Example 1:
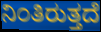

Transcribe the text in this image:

ನಿಂತಿರುತ್ತದೆ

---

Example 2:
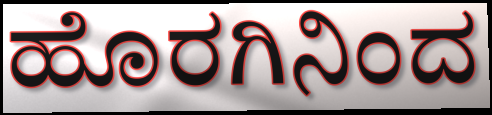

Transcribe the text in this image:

ಹೊರಗಿನಿಂದ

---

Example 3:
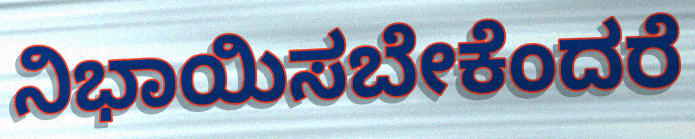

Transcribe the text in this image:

ನಿಭಾಯಿಸಬೇಕೆಂದರೆ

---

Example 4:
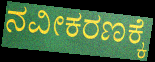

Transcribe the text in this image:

ನವೀಕರಣಕ್ಕೆ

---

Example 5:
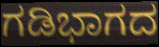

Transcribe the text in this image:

ಗಡಿಭಾಗದ